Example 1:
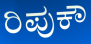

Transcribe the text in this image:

ರಿಪುಕೌ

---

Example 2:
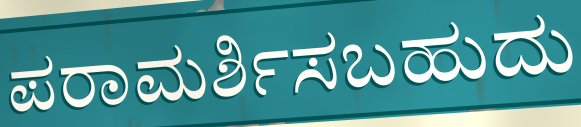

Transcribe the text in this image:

ಪರಾಮರ್ಶಿಸಬಹುದು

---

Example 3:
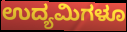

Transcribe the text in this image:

ಉದ್ಯಮಿಗಳೂ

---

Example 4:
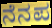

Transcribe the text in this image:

ನೆನಪ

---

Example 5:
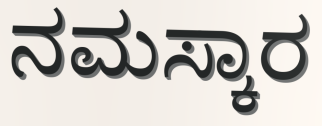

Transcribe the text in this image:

ನಮಸ್ಕಾರ